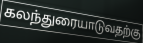
கலந்துரையாடுவதற்கு